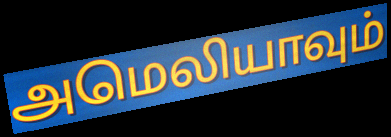
அமெலியாவும்